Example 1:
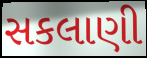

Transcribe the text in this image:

સકલાણી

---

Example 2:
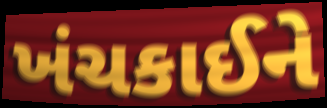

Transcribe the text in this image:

ખંચકાઈને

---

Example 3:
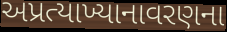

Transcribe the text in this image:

અપ્રત્યાખ્યાનાવરણના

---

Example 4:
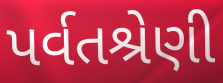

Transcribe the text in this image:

પર્વતશ્રેણી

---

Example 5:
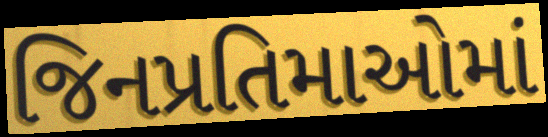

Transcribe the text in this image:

જિનપ્રતિમાઓમાં